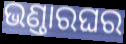
ଭଣ୍ଡାରଘର